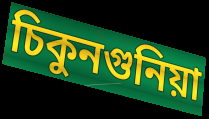
চিকুনগুনিয়া